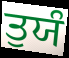
ਤੁਯੰ